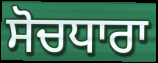
ਸੋਚਧਾਰਾ